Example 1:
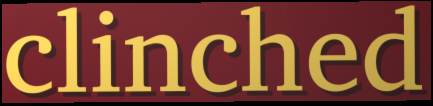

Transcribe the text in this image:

clinched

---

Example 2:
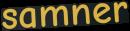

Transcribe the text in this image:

samner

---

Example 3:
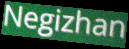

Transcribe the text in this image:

Negizhan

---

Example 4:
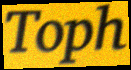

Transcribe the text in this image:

Toph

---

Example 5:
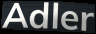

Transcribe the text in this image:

Adler